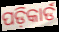
ପଡ଼ିକାର୍ଡ